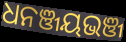
ଧନଞ୍ଜୟଭଞ୍ଜ